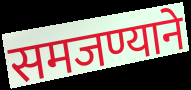
समजण्याने